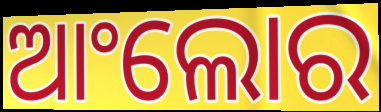
ଆଂଲୋର